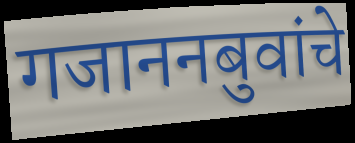
गजाननबुवांचे